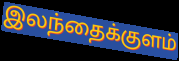
இலந்தைக்குளம்